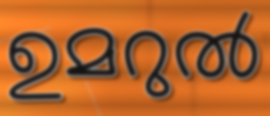
ഉമറുൽ